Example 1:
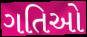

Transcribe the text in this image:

ગતિઓ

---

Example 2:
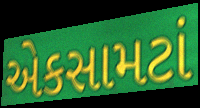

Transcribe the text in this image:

એકસામટાં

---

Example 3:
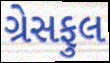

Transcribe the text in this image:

ગ્રેસફુલ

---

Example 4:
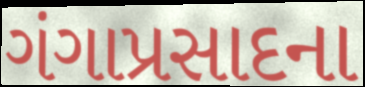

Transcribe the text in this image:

ગંગાપ્રસાદના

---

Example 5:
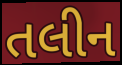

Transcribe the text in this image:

તલીન